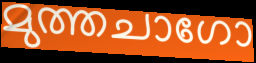
മുത്തചാഗോ